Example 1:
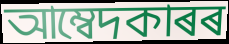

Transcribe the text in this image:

আম্বেদকাৰৰ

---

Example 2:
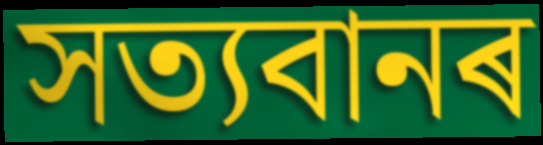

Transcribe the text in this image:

সত্যবানৰ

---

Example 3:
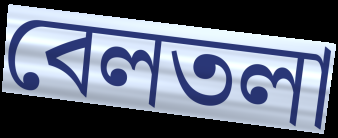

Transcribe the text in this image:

বেলতলা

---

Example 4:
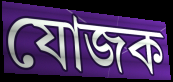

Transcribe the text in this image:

যোজক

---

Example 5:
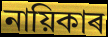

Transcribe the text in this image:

নায়িকাৰ